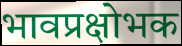
भावप्रक्षोभक